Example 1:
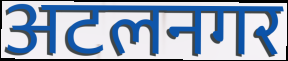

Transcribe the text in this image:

अटलनगर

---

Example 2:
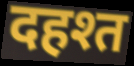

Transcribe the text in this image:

दहश्त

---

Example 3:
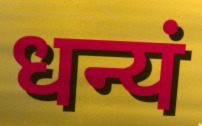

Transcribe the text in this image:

धन्यं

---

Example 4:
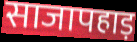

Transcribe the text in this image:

साजापहाड़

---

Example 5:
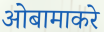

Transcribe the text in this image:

ओबामाकरे